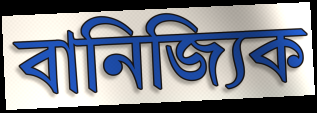
বানিজ্যিক